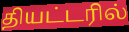
தியட்டரில்